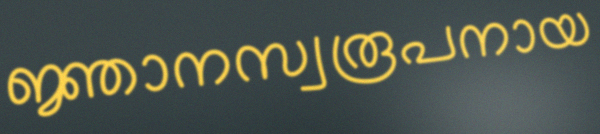
ജ്ഞാനസ്വരൂപനായ